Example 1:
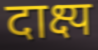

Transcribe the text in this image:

दाक्ष्य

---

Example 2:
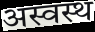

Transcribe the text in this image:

अस्वस्थ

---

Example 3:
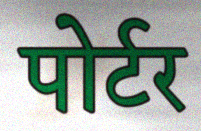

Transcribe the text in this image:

पोर्टर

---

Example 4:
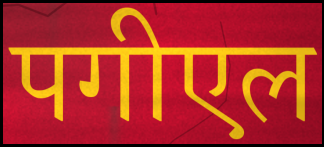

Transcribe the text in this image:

पगीएल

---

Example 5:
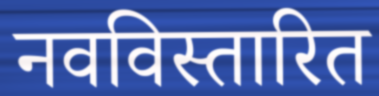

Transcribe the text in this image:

नवविस्तारित